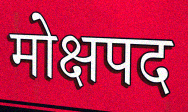
मोक्षपद